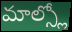
మాల్స్లో